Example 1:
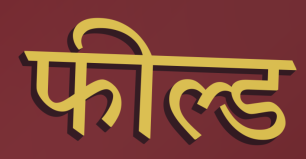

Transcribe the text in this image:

फील्ड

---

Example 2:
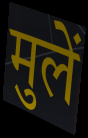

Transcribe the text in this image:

मुलें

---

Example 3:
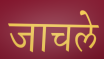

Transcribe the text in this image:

जाचले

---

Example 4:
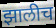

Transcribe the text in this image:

झालीच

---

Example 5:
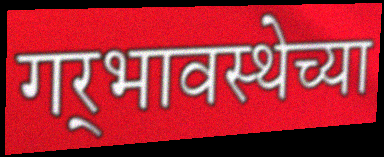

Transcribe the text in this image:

गर्भावस्थेच्या